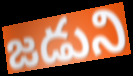
జడుని